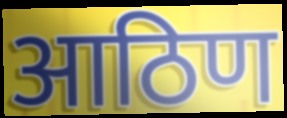
आठिण